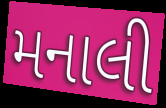
મનાલી